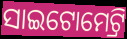
ସାଇଟୋମେଟ୍ରି